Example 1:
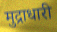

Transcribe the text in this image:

मुद्राधारी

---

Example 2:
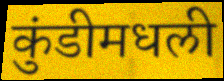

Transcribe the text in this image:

कुंडीमधली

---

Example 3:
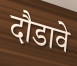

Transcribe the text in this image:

दौडावे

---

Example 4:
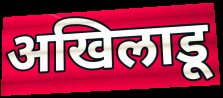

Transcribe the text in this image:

अखिलाडू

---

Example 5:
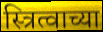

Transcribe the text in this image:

स्त्रित्वाच्या